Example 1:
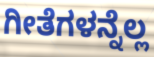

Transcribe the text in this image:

ಗೀತೆಗಳನ್ನೆಲ್ಲ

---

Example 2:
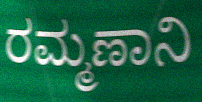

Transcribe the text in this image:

ರಮ್ಮಣಾನಿ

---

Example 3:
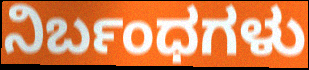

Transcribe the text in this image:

ನಿರ್ಬಂಧಗಳು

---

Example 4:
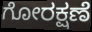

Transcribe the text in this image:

ಗೋರಕ್ಷಣೆ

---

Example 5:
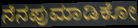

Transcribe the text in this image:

ನೆನಪುಮಾಡಿಕೋ